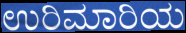
ಉರಿಮಾರಿಯ